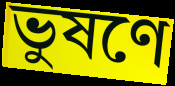
ভুষণে